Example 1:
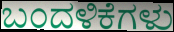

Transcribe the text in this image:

ಬಂದಳಿಕೆಗಳು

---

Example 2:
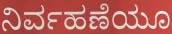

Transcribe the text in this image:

ನಿರ್ವಹಣೆಯೂ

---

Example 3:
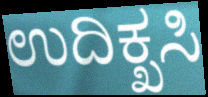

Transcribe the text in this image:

ಉದಿಕ್ಖಸಿ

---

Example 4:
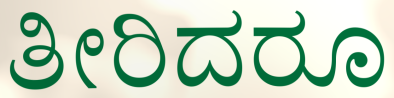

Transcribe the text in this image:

ತೀರಿದರೂ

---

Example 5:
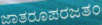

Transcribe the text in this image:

ಜಾತರೂಪರಜತಂ